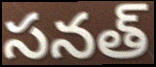
సనత్